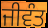
ਜੀਵੰਤ